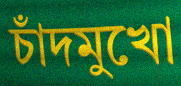
চাঁদমুখো